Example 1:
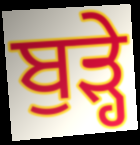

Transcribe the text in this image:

ਬੁੜ੍ਹੇ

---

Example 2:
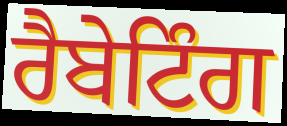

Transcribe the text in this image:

ਰੈਬੇਟਿੰਗ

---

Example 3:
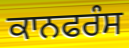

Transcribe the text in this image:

ਕਾਨਫਰੰਸ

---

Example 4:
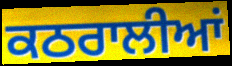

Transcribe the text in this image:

ਕਠਰਾਲੀਆਂ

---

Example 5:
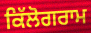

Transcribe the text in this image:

ਕਿੱਲੋਗਰਾਮ